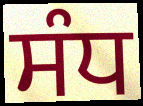
ਸੰਧ